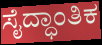
ಸೈದ್ಧಾಂತಿಕ